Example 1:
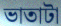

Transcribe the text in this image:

ভাতাটা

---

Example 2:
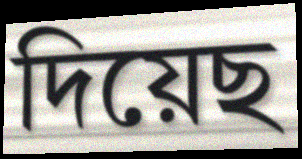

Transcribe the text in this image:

দিয়েছ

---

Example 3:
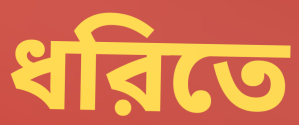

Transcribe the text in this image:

ধরিতে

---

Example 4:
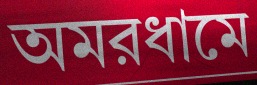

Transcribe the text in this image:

অমরধামে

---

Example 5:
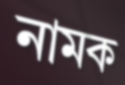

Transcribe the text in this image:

নামক